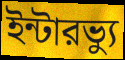
ইন্টারভ্যু